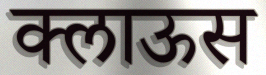
क्लाऊस